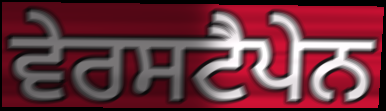
ਵੇਰਸਟੈਪੇਨ